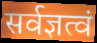
सर्वज्ञत्वं